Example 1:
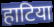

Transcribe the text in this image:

हाटिया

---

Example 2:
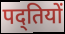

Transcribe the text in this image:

पद्तियों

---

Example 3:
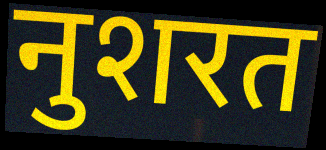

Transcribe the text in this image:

नुशरत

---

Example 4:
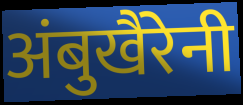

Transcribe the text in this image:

अंबुखैरेनी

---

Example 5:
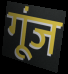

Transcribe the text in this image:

गूंज